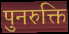
पुनरुक्ति